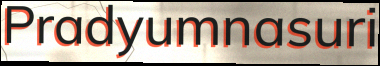
Pradyumnasuri